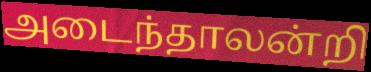
அடைந்தாலன்றி